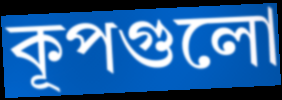
কূপগুলো